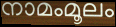
നാമംമൂലം